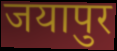
जयापुर